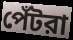
পেঁটরা